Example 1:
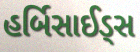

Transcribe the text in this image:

હર્બિસાઈડ્સ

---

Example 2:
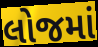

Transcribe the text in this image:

લોજમાં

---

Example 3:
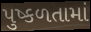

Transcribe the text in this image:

પુષ્કળતામાં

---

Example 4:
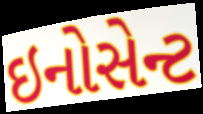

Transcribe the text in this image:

ઇનોસેન્ટ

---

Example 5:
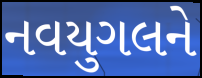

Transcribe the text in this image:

નવયુગલને